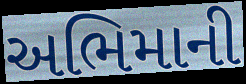
અભિમાની